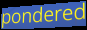
pondered